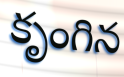
కృంగిన